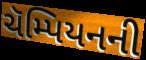
ચૅમ્પિયનની